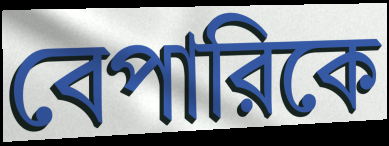
বেপারিকে